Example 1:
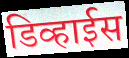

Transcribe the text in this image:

डिव्हाईस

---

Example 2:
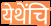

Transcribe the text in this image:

येथेंचि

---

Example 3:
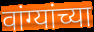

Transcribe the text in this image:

वांग्यांच्या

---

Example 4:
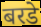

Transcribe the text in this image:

बरडे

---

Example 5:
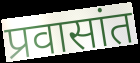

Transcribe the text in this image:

प्रवासांत